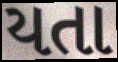
યતા